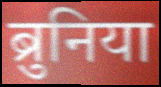
ब्रुनिया